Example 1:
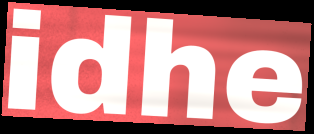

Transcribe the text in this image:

idhe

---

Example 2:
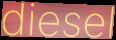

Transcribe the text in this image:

diesel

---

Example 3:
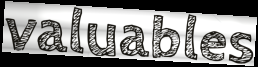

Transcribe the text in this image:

valuables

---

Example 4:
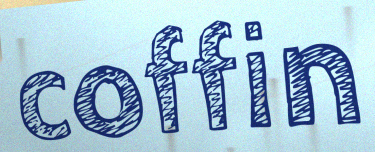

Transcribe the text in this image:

coffin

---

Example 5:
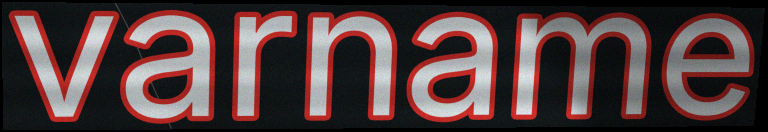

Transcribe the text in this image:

varname